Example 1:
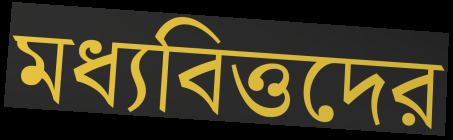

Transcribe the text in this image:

মধ্যবিত্তদের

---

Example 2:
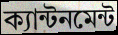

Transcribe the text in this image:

ক্যান্টনমেন্ট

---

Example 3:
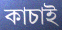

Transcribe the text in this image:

কাচাই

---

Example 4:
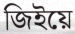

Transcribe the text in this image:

জিইয়ে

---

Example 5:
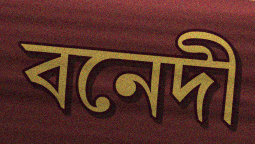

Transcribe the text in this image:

বনেদী